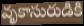
వృకాసురుడికి